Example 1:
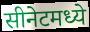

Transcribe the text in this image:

सीनेटमध्ये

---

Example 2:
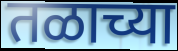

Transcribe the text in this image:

तळाच्या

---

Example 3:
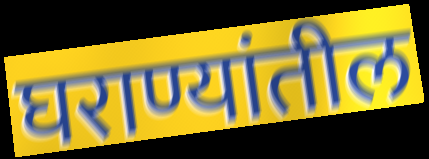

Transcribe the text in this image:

घराण्यांतील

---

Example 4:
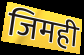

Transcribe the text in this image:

जिमही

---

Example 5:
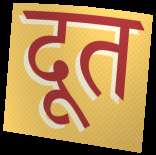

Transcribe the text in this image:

दूत